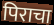
पिराचा